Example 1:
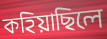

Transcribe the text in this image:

কহিয়াছিলে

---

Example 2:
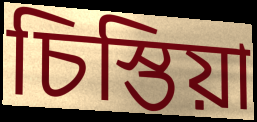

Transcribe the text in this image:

চিস্তিয়া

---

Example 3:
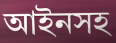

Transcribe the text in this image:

আইনসহ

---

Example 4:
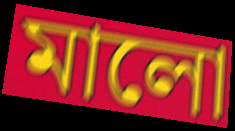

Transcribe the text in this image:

মালো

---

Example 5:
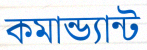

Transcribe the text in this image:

কমান্ড্যান্ট